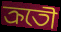
ক্রতৌ